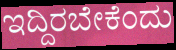
ಇದ್ದಿರಬೇಕೆಂದು